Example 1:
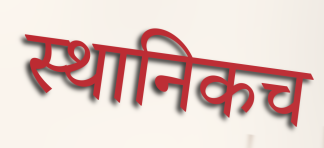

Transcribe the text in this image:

स्थानिकच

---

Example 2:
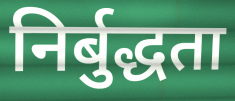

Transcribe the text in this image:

निर्बुद्धता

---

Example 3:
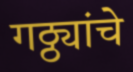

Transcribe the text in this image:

गठ्ठ्यांचे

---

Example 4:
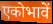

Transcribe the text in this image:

एकोभावें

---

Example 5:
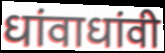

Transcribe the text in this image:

धांवाधांवी